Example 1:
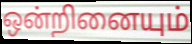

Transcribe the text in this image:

ஒன்றினையும்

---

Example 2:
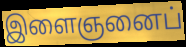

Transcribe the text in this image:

இளைஞனைப்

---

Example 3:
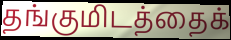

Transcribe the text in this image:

தங்குமிடத்தைக்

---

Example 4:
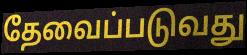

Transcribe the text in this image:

தேவைப்படுவது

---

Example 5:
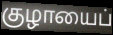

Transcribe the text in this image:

குழாயைப்